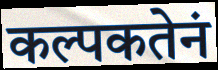
कल्पकतेनं